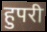
हुपरी